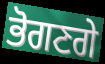
ਭੋਗਣਗੇ